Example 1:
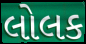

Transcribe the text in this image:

લોલક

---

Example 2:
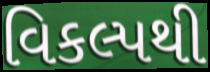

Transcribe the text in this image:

વિકલ્પથી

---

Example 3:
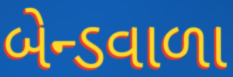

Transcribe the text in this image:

બેન્ડવાળા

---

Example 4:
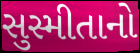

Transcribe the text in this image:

સુસ્મીતાનો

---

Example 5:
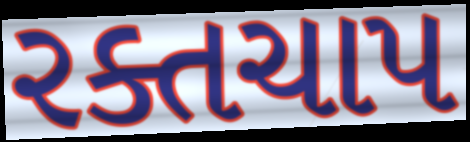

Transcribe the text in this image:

રક્તચાપ